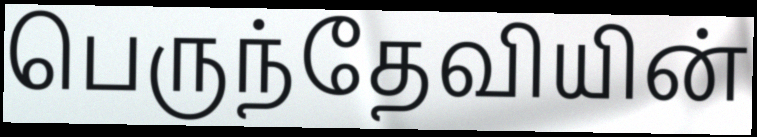
பெருந்தேவியின்